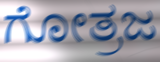
ಗೋತ್ರಜ